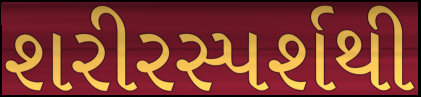
શરીરસ્પર્શથી